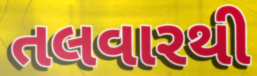
તલવારથી